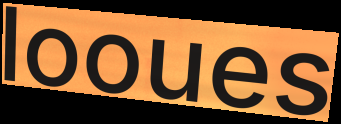
looues